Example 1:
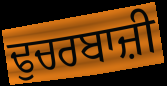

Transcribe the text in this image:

ਢੁਚਰਬਾਜ਼ੀ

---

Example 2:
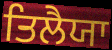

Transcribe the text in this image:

ਤਿਲੈਯਾ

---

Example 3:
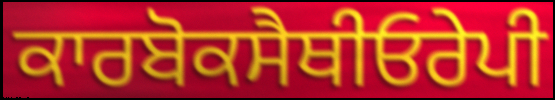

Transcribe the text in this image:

ਕਾਰਬੋਕਸੈਥੀਓਰੇਪੀ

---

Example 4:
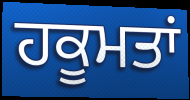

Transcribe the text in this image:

ਹਕੂਮਤਾਂ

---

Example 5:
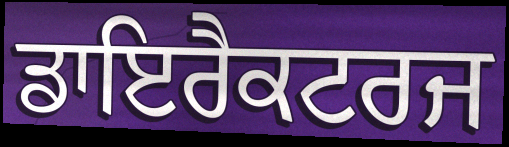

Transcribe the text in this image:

ਡਾਇਰੈਕਟਰਜ